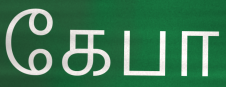
கேபா